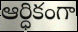
ఆర్ధికంగా